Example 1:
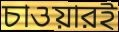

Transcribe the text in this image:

চাওয়ারই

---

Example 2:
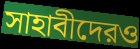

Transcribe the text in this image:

সাহাবীদেরও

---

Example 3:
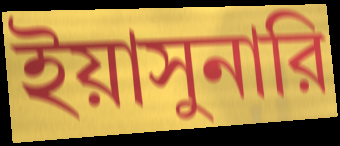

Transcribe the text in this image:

ইয়াসুনারি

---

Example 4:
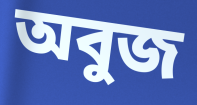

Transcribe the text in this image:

অবুজ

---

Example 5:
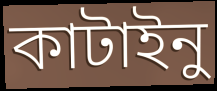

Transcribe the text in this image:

কাটাইনু